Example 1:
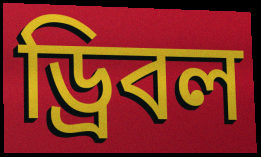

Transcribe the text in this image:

ড্রিবল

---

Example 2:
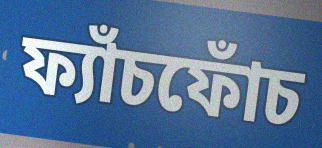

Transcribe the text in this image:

ফ্যাঁচফোঁচ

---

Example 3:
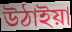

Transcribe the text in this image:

উঠাইয়া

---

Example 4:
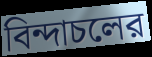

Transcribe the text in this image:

বিন্দাচলের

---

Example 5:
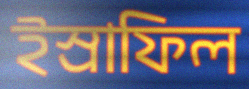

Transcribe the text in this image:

ইস্রাফিল